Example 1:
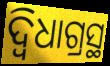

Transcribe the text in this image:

ଦ୍ବିଧାଗ୍ରସ୍ଥ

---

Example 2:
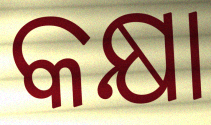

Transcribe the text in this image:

କକ୍ଷା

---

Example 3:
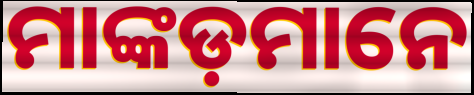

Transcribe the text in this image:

ମାଙ୍କଡ଼ମାନେ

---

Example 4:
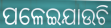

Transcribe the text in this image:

ପଳେଇଯାଉଚି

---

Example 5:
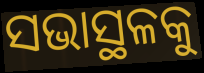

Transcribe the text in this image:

ସଭାସ୍ଥଳକୁ